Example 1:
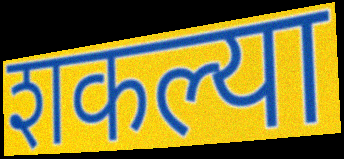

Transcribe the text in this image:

शकल्या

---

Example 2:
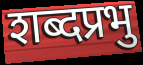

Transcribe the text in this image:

शब्दप्रभु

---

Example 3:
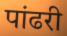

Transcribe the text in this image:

पांढरी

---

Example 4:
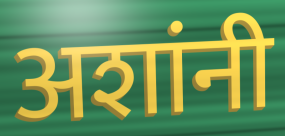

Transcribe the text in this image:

अशांनी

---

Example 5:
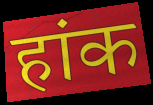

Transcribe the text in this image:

हांक